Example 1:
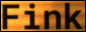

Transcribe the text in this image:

Fink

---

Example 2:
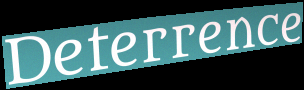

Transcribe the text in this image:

Deterrence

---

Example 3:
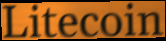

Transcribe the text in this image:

Litecoin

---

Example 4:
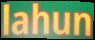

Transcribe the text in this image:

lahun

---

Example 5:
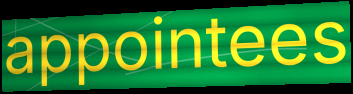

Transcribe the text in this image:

appointees